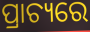
ପ୍ରାଚ୍ୟରେ